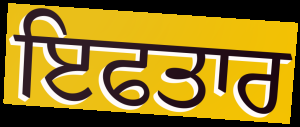
ਇਫਤਾਰ